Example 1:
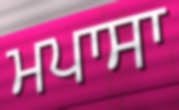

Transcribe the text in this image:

ਮਪਾਸਾ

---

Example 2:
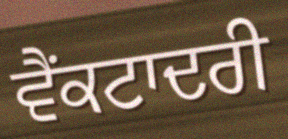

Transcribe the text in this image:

ਵੈਂਕਟਾਦਰੀ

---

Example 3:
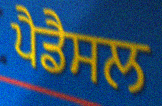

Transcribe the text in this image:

ਪੈਡੈਸਲ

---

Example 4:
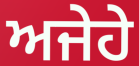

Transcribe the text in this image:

ਅਜੇਹੇ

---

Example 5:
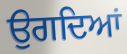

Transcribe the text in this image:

ਉਗਦਿਆਂ